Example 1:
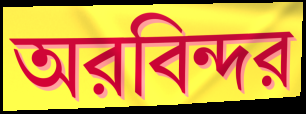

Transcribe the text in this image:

অরবিন্দর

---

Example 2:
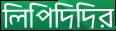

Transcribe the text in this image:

লিপিদিদির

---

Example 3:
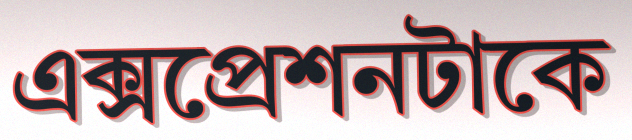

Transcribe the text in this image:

এক্সপ্রেশনটাকে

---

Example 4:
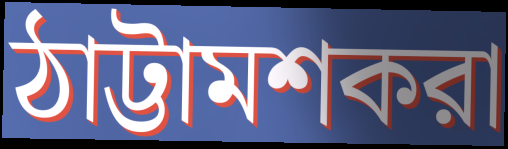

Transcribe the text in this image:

ঠাট্টামশকরা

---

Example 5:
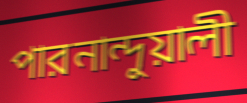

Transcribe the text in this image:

পারনান্দুয়ালী